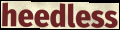
heedless